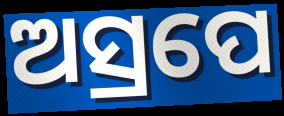
ଅସ୍ରପେ